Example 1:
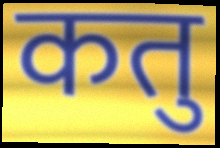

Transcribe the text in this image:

कतु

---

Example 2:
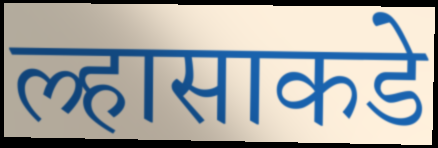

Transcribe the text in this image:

ल्हासाकडे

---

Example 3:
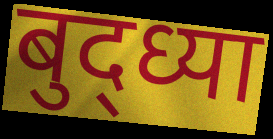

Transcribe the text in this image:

बुद्ध्या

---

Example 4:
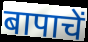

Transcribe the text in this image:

बापाचें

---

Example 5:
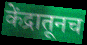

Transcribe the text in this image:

केंद्रातूनच